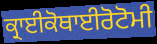
ਕ੍ਰਾਈਕੋਥਾਈਰੋਟੋਮੀ